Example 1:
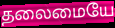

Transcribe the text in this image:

தலைமையே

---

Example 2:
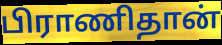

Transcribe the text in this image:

பிராணிதான்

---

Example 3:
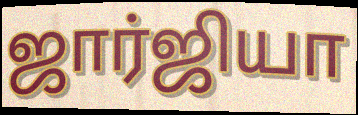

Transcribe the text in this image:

ஜார்ஜியா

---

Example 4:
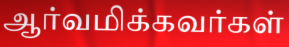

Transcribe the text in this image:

ஆர்வமிக்கவர்கள்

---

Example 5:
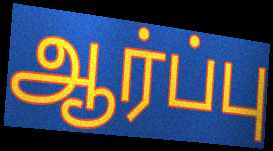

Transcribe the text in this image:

ஆர்ப்பு